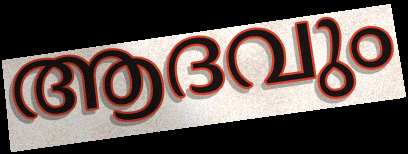
ആദവും